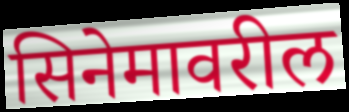
सिनेमावरील